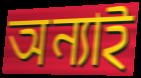
অন্যাই